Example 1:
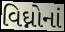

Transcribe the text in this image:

વિઘ્નોનાં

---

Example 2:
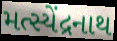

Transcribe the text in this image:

મત્સ્યેંદ્રનાથ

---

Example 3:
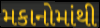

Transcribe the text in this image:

મકાનોમાંથી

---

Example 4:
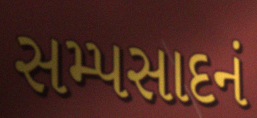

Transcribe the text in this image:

સમ્પસાદનં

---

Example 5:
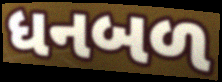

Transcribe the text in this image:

ધનબળ